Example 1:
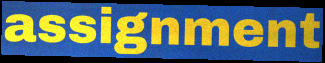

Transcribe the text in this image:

assignment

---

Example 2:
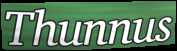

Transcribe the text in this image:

Thunnus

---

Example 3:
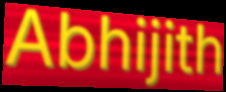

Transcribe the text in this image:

Abhijith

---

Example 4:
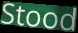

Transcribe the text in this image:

Stood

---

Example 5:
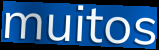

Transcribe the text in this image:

muitos